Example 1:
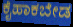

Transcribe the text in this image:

ಕೈಹಾಕಬೇಡ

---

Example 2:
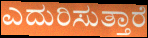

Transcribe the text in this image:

ಎದುರಿಸುತ್ತಾರೆ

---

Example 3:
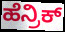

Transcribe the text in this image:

ಹೆನ್ರಿಕ್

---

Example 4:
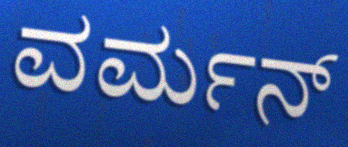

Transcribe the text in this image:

ವರ್ಮನ್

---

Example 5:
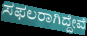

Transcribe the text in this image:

ಸಫಲರಾಗಿದ್ದೇವೆ